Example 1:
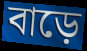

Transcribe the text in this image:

বাড়ে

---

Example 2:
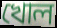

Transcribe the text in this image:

খোল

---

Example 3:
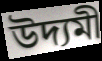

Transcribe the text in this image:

উদ্যমী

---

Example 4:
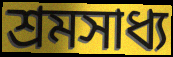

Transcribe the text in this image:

শ্ৰমসাধ্য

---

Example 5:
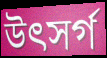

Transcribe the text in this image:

উৎসৰ্গ